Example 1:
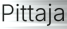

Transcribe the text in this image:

Pittaja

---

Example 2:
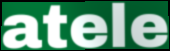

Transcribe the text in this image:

atele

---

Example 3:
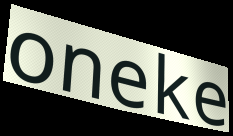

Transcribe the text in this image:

oneke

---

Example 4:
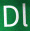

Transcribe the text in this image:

Dl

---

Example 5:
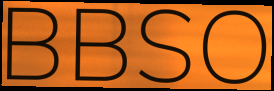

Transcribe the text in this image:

BBSO